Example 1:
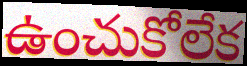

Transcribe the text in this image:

ఉంచుకోలేక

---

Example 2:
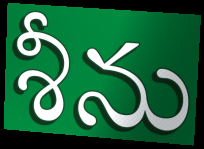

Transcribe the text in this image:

శీను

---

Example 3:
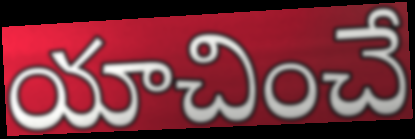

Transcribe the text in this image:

యాచించే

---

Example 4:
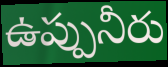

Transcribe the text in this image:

ఉప్పునీరు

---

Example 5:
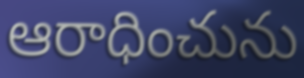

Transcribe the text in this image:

ఆరాధించును